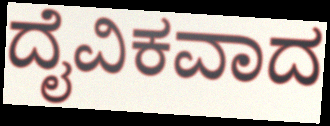
ದೈವಿಕವಾದ